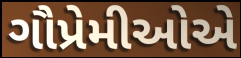
ગૌપ્રેમીઓએ